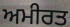
ਅਮੀਰਤ